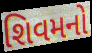
શિવમનો